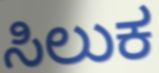
ಸಿಲುಕ